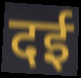
दई